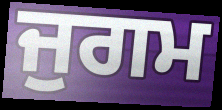
ਜੁਗਮ